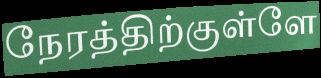
நேரத்திற்குள்ளே